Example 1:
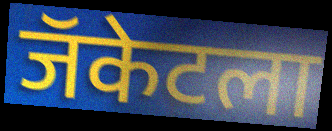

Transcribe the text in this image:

जॅकेटला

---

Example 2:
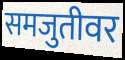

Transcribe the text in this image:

समजुतीवर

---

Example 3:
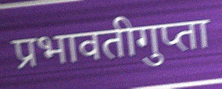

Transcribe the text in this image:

प्रभावतीगुप्ता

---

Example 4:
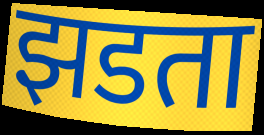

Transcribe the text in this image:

झडता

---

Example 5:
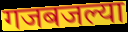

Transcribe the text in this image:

गजबजल्या